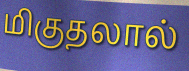
மிகுதலால்